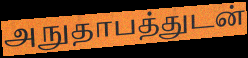
அநுதாபத்துடன்